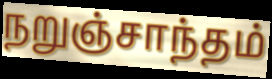
நறுஞ்சாந்தம்